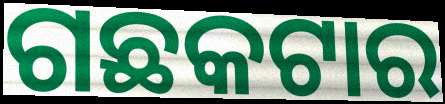
ଗଛକଟାର